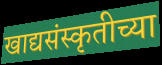
खाद्यसंस्कृतीच्या